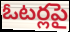
ఓటర్లపై